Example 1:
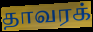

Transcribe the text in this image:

தாவரக்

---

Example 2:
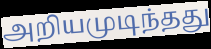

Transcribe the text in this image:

அறியமுடிந்தது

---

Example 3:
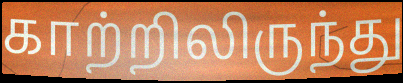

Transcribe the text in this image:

காற்றிலிருந்து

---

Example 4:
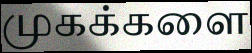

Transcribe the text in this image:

முகக்களை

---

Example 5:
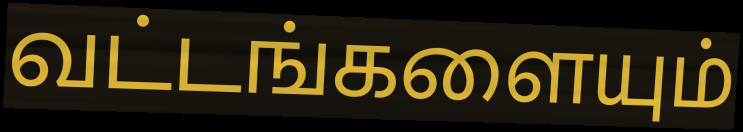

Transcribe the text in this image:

வட்டங்களையும்